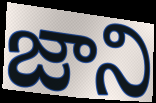
జాని